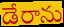
డేరాను